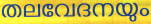
തലവേദനയും